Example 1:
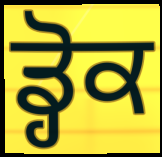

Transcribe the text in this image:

ਡ੍ਹੋਕ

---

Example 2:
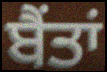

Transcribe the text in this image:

ਬੈਂਤਾਂ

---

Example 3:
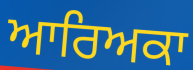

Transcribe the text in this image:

ਆਰਿਅਕਾ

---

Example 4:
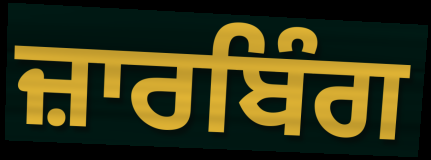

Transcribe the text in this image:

ਜ਼ਾਰਬਿੰਗ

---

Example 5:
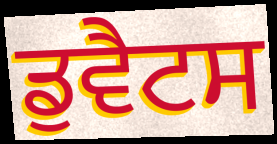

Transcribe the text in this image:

ਡੁਵੈਟਸ